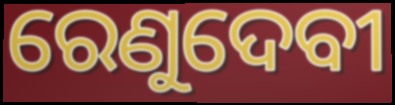
ରେଣୁଦେବୀ